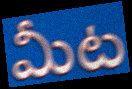
మీట